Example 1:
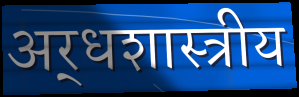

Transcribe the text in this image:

अर्धशास्त्रीय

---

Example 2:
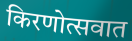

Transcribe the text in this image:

किरणोत्सवात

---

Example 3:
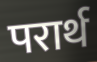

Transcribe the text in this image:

परार्थ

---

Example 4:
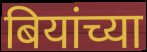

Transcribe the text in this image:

बियांच्या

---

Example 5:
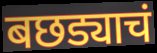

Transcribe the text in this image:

बछड्याचं